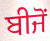
ਬੀਜੋਂ